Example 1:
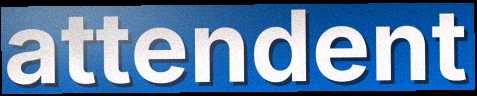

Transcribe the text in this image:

attendent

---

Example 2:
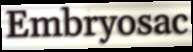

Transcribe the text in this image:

Embryosac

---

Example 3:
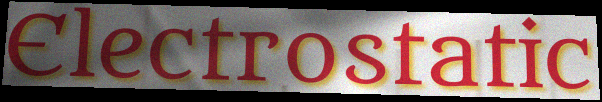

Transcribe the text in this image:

Electrostatic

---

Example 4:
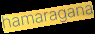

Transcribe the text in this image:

hamaragana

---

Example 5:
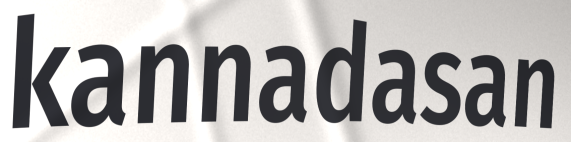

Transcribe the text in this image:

kannadasan